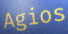
Agios